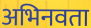
अभिनवता